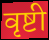
वृष्टी